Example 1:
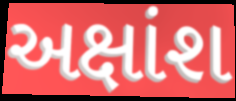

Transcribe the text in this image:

અક્ષાંશ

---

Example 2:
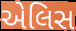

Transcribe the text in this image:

એલિસ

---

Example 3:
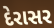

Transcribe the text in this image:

દેરાસર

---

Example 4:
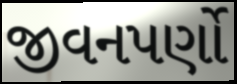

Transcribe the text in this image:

જીવનપર્ણો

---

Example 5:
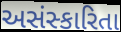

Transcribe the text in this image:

અસંસ્કારિતા